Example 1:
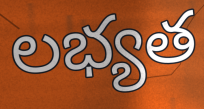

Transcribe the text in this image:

లభ్యత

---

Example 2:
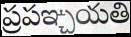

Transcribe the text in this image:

ప్రపఞ్చయతి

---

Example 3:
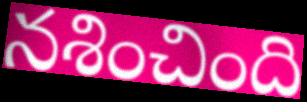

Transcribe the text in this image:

నశించింది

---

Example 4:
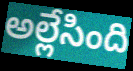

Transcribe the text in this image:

అల్లేసింది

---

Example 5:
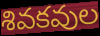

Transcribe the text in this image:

శివకవుల